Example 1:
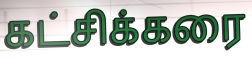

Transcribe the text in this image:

கட்சிக்கரை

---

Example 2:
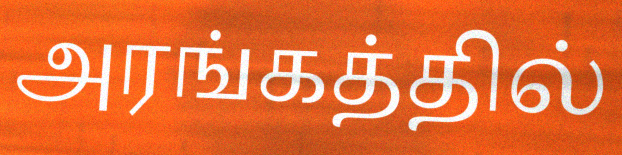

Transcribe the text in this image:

அரங்கத்தில்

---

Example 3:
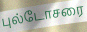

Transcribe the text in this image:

புல்டோசரை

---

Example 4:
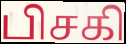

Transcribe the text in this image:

பிசகி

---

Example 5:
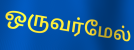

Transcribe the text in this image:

ஒருவர்மேல்